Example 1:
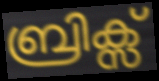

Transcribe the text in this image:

ബ്രിക്സ്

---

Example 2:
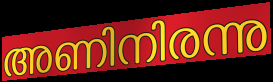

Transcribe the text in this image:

അണിനിരന്നു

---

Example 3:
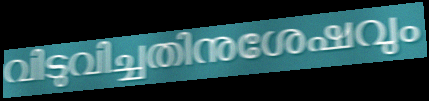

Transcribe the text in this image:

വിടുവിച്ചതിനുശേഷവും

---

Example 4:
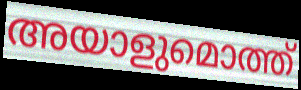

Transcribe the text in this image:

അയാളുമൊത്ത്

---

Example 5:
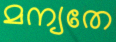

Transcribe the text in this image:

മന്യതേ